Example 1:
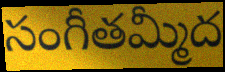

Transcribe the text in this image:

సంగీతమ్మీద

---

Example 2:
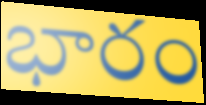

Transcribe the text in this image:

భారం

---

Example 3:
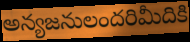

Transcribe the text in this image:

అన్యజనులందరిమీదికి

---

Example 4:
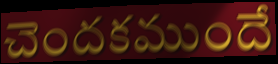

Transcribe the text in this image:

చెందకముందే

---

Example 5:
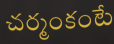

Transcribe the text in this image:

చర్మంకంటే